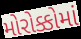
મોરોક્કોમાં